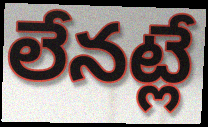
లేనట్లే